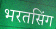
भरतसिंग